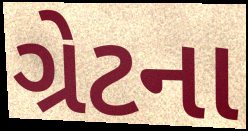
ગ્રેટના